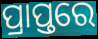
ପ୍ରାପ୍ତରେ